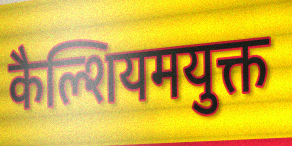
कैल्शियमयुक्त